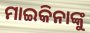
ମାଇକିନାଙ୍କୁ